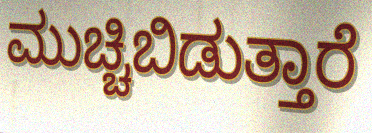
ಮುಚ್ಚಿಬಿಡುತ್ತಾರೆ